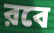
রবে